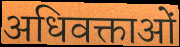
अधिवक्ताओं